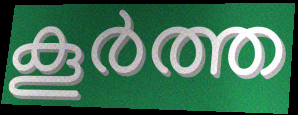
കൂർത്ത